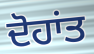
ਦੋਹਾਂਤ